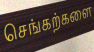
செங்கற்களை